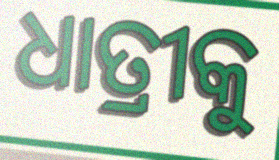
ଧାତ୍ରୀକୁ